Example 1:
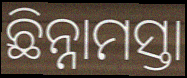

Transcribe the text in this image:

ଛିନ୍ନାମସ୍ତା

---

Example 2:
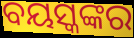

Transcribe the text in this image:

ବୟସ୍କଙ୍କର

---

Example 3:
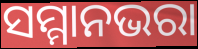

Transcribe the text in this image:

ସମ୍ମାନଭରା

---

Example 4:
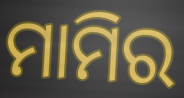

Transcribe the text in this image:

ମାମିର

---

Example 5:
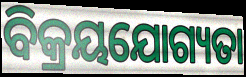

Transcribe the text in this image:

ବିକ୍ରୟଯୋଗ୍ୟତା